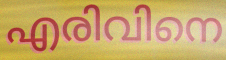
എരിവിനെ